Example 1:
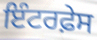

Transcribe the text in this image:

ਇੰਟਰਫ਼ੇਸ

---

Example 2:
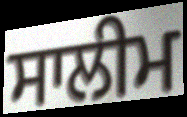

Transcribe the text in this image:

ਸਾਲੀਮ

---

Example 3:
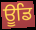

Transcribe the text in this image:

ਊਡਿ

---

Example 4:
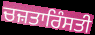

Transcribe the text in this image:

ਚਜ਼ਤਾਰਿੰਸਤੀ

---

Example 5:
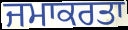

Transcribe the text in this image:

ਜਮਾਕਰਤਾ